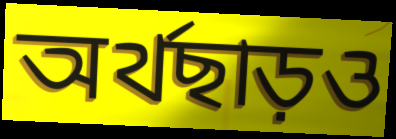
অর্থছাড়ও